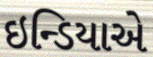
ઇન્ડિયાએ